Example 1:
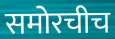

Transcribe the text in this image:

समोरचीच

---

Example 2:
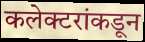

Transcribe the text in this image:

कलेक्टरांकडून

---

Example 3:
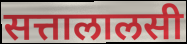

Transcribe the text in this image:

सत्तालालसी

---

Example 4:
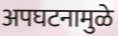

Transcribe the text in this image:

अपघटनामुळे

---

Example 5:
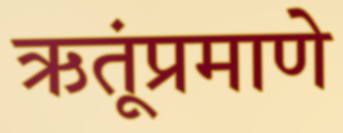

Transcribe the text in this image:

ऋतूंप्रमाणे